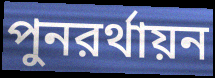
পুনরর্থায়ন